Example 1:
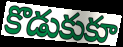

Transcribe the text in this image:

కొడుకుకూ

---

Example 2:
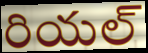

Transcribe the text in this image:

రియల్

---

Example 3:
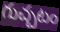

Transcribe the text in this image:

గుచ్చటం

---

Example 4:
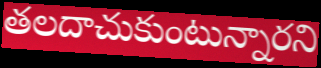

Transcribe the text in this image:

తలదాచుకుంటున్నారని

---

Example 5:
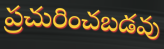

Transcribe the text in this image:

ప్రచురించబడవు